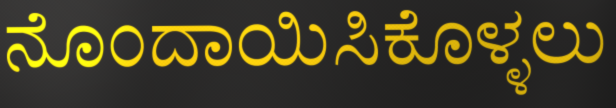
ನೊಂದಾಯಿಸಿಕೊಳ್ಳಲು